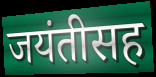
जयंतीसह